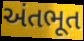
અંતભૂત